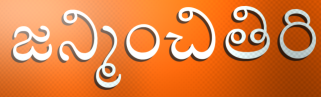
జన్మించితిరి